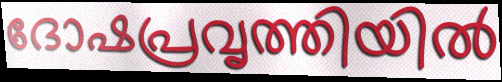
ദോഷപ്രവൃത്തിയിൽ